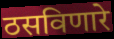
ठसविणारे